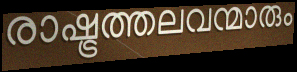
രാഷ്ട്രത്തലവന്മാരും